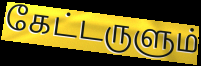
கேட்டருளும்